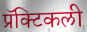
प्रॅक्टिकली